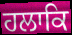
ਹਲਾਕਿ